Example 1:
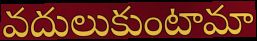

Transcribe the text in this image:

వదులుకుంటామా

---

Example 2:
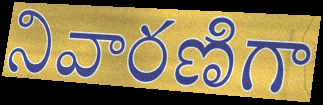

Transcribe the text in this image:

నివారణిగా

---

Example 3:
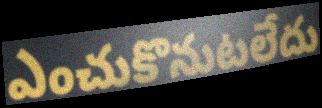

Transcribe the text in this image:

ఎంచుకొనుటలేదు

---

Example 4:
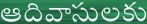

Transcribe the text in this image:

ఆదివాసులకు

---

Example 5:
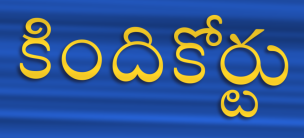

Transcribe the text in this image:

కిందికోర్టు